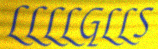
LLLLGLLS